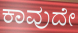
ಕಾವುದೇ